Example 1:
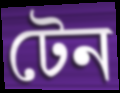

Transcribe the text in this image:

টেন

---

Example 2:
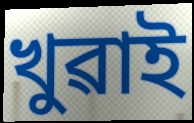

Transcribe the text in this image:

খুৱাই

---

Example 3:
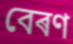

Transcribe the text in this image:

বেৰণ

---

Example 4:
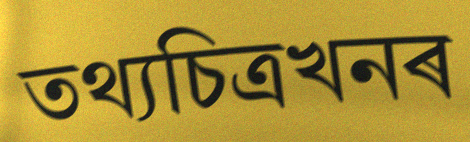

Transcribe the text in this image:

তথ্যচিত্ৰখনৰ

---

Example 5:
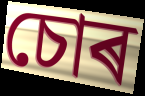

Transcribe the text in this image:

চোৰ